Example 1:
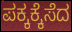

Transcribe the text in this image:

ಪಕ್ಕಕ್ಕೆಸೆದ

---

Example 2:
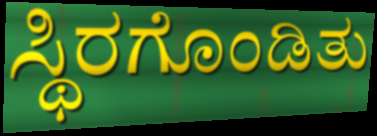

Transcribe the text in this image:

ಸ್ಥಿರಗೊಂಡಿತು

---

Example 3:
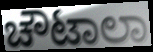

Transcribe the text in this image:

ಚೌಟಾಲಾ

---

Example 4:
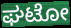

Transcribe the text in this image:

ಘಟೋ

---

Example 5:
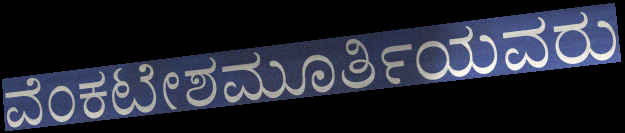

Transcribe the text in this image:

ವೆಂಕಟೇಶಮೂರ್ತಿಯವರು